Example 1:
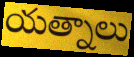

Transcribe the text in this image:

యత్నాలు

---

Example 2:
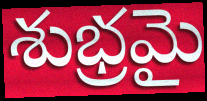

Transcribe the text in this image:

శుభ్రమై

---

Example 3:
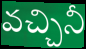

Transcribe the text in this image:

వచ్చినీ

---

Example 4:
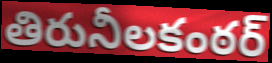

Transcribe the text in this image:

తిరునీలకంఠర్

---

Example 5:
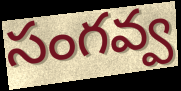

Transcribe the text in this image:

సంగవ్వ